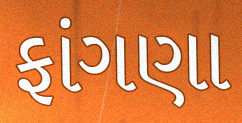
ફાંગણા